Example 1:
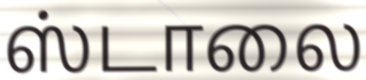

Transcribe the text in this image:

ஸ்டாலை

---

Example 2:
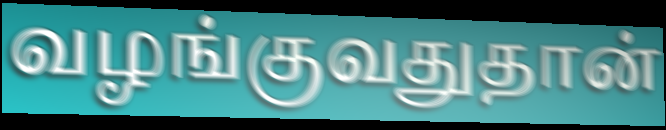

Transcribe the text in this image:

வழங்குவதுதான்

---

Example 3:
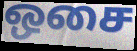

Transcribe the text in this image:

ஒசை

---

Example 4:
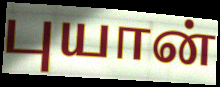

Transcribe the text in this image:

புயான்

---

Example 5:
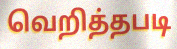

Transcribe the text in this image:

வெறித்தபடி